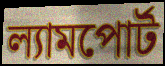
ল্যামপোর্ট